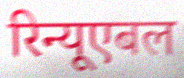
रिन्यूएबल